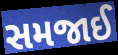
સમજાઈ